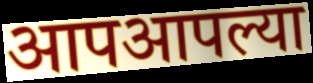
आपआपल्या